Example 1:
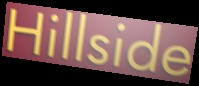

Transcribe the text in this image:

Hillside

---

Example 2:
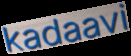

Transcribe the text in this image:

kadaavi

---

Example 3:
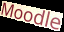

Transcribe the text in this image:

Moodle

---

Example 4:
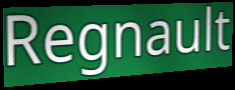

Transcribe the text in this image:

Regnault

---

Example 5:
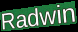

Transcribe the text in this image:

Radwin